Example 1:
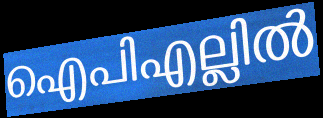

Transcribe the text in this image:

ഐപിഎല്ലിൽ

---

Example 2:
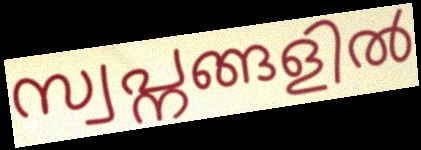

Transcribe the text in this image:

സ്വപ്നങ്ങളിൽ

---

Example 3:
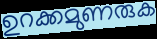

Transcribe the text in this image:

ഉറക്കമുണരുക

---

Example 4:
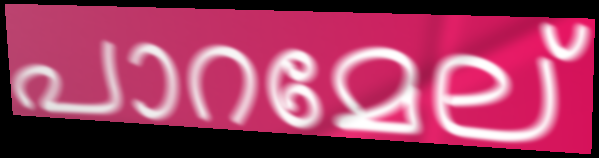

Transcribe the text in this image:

പാറമേല്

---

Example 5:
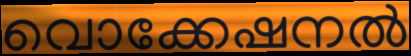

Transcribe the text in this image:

വൊക്കേഷനൽ